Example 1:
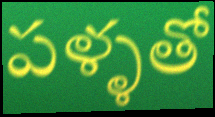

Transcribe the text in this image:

పళ్ళతో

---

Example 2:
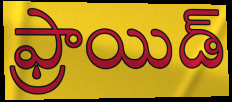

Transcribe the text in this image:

ఫ్రాయిడ్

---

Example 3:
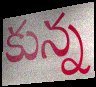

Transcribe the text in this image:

కున్న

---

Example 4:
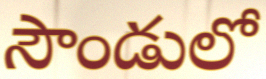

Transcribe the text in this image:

సౌండులో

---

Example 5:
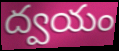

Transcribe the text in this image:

ద్వయం